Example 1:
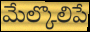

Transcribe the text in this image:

మేల్కొలిపే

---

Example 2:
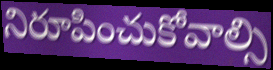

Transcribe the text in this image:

నిరూపించుకోవాల్సి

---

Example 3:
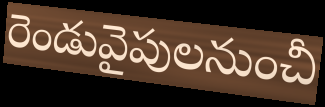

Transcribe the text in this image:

రెండువైపులనుంచీ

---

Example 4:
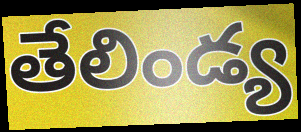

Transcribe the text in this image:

తేలిండ్య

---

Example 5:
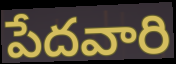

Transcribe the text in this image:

పేదవారి